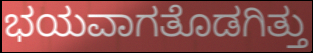
ಭಯವಾಗತೊಡಗಿತ್ತು